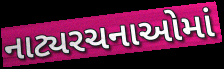
નાટ્યરચનાઓમાં